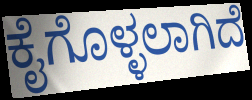
ಕೈಗೊಳ್ಳಲಾಗಿದೆ